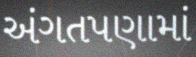
અંગતપણામાં